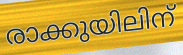
രാക്കുയിലിന്